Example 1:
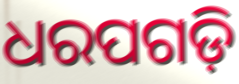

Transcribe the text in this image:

ଧରପଗଡ଼ି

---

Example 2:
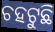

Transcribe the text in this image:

ଚହଟୁଛି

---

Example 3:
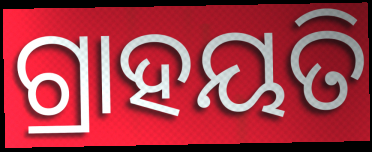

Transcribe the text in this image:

ଗ୍ରାହୟତି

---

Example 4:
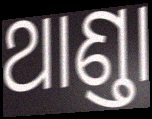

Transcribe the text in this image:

ଥାଣ୍ଡା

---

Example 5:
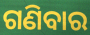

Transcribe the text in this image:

ଗଣିବାର